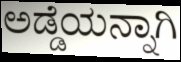
ಅಡ್ಡೆಯನ್ನಾಗಿ